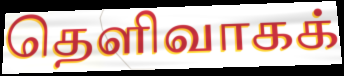
தெளிவாகக்